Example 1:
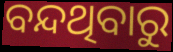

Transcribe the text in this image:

ବନ୍ଦଥିବାରୁ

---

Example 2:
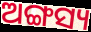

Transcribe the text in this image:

ଅଙ୍ଗସ୍ୟ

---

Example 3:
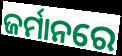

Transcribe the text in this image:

ଜର୍ମାନରେ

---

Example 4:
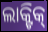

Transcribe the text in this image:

ଲାକ୍ଟିକ୍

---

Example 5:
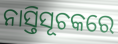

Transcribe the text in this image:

ନାସ୍ତିସୂଚକରେ